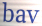
bav